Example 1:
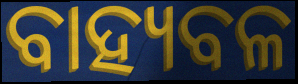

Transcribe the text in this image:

ବାହ୍ୟବଳ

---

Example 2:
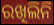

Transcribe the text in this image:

ରଖିଲିନି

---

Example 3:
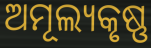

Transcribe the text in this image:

ଅମୂଲ୍ୟକୃଷ୍ଣ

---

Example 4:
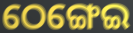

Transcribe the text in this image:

ଠେଙ୍ଗେଇ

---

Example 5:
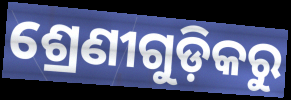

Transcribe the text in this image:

ଶ୍ରେଣୀଗୁଡ଼ିକରୁ